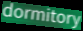
dormitory